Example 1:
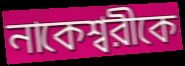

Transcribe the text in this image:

নাকেশ্বরীকে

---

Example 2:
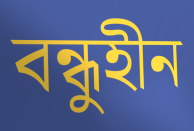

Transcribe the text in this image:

বন্ধুহীন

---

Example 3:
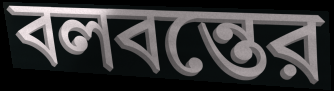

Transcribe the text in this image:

বলবন্তের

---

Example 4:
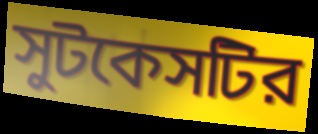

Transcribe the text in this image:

সুটকেসটির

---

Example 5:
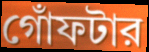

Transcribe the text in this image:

গোঁফটার